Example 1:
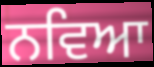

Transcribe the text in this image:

ਨਵਿਆ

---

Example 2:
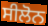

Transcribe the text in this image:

ਸੀਲੋਨ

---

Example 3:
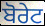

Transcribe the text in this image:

ਬੋਰੇਟ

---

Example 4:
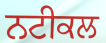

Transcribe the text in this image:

ਨਟੀਕਲ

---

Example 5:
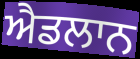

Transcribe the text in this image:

ਐਡਲਾਨ